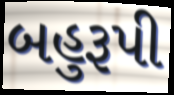
બહુરૂપી